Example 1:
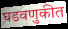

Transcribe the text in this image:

घडवणुकीत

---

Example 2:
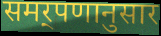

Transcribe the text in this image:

समर्पणानुसार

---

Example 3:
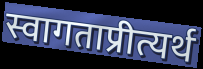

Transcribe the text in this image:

स्वागताप्रीत्यर्थ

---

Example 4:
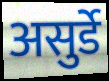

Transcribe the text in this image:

असुर्डे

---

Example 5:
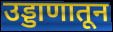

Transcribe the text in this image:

उड्डाणातून